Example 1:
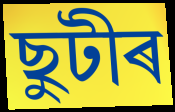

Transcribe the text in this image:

ছুটীৰ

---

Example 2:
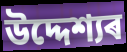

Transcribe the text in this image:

উদ্দেশ্যৰ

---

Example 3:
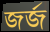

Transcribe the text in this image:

জৰ্জ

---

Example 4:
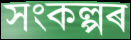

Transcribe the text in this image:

সংকল্পৰ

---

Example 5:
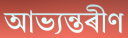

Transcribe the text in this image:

আভ্যন্তৰীণ